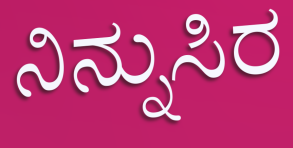
ನಿನ್ನುಸಿರ